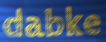
dabke